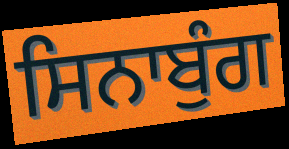
ਸਿਨਾਬੁੰਗ